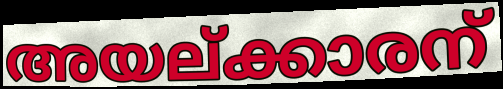
അയല്ക്കാരന്